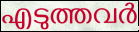
എടുത്തവർ